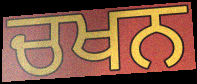
ਚਖਨ